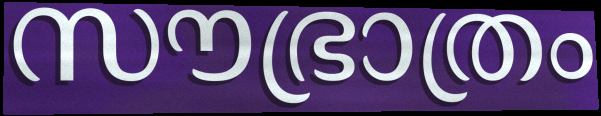
സൗഭ്രാത്രം